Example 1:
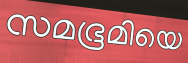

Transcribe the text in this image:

സമഭൂമിയെ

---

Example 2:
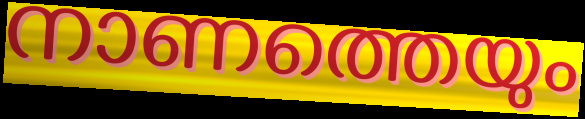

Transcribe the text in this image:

നാണത്തെയും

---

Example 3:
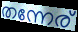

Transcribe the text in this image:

തന്നേര്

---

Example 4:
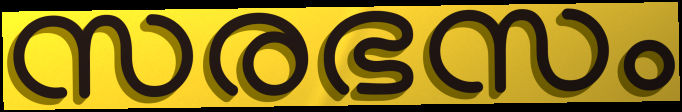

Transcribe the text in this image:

സരഭസം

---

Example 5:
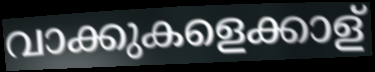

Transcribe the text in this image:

വാക്കുകളെക്കാള്